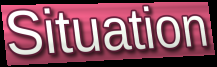
Situation